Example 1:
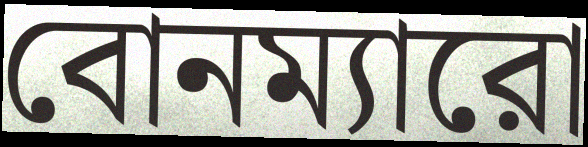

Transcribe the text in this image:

বোনম্যারো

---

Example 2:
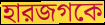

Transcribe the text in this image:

হারজগকে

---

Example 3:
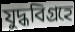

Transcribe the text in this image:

যুদ্ধবিগ্রহে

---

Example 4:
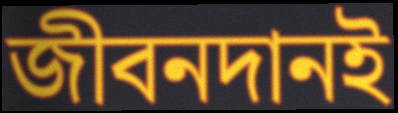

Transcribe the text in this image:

জীবনদানই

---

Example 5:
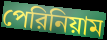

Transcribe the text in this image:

পেরিনিয়াম